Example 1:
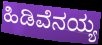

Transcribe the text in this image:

ಹಿಡಿವೆನಯ್ಯ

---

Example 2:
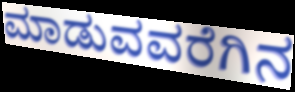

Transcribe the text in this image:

ಮಾಡುವವರೆಗಿನ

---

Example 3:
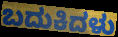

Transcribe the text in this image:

ಬದುಕಿದಳು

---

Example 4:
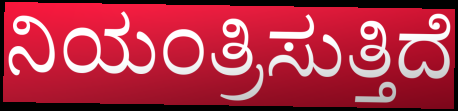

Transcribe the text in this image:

ನಿಯಂತ್ರಿಸುತ್ತಿದೆ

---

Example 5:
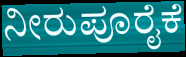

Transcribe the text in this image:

ನೀರುಪೂರೈಕೆ